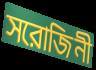
সরোজিনী